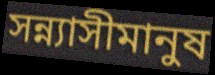
সন্ন্যাসীমানুষ